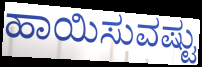
ಹಾಯಿಸುವಷ್ಟು